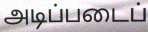
அடிப்படைப்